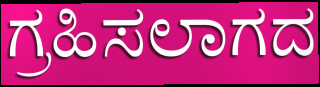
ಗ್ರಹಿಸಲಾಗದ